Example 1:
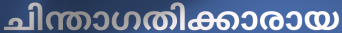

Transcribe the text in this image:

ചിന്താഗതിക്കാരായ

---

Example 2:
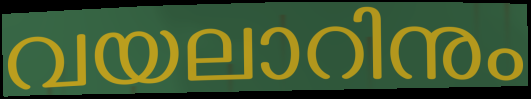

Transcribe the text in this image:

വയലാറിനും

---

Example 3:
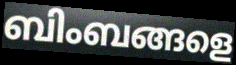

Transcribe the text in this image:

ബിംബങ്ങളെ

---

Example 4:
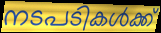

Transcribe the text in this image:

നടപടികൾക്ക്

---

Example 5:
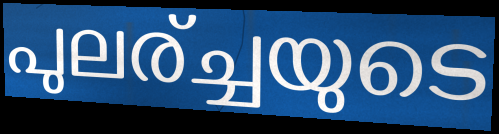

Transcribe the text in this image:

പുലര്ച്ചയുടെ